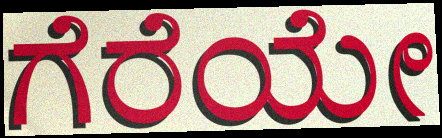
ಗೆರೆಯೇ